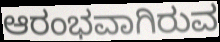
ಆರಂಭವಾಗಿರುವ